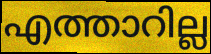
എത്താറില്ല